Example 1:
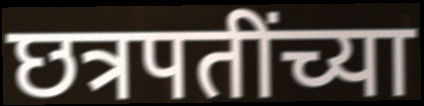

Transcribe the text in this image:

छत्रपतींच्या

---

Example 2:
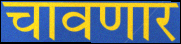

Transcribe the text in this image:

चावणार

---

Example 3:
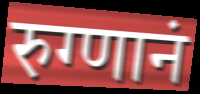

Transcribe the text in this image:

रुग्णानं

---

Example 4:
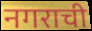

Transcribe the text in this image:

नगराची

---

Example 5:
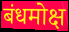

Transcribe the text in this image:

बंधमोक्ष